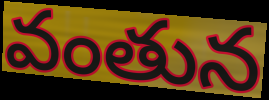
వంతున